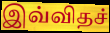
இவ்விதச்